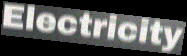
Electricity